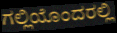
ಗಲ್ಲಿಯೊಂದರಲ್ಲಿ